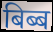
बिब्ब